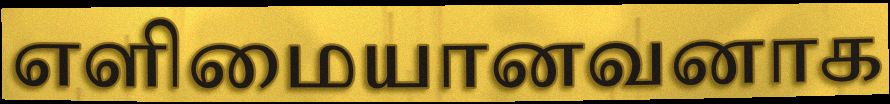
எளிமையானவனாக